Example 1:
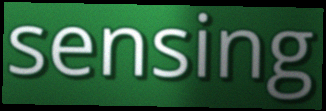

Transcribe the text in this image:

sensing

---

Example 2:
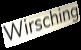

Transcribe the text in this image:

Wirsching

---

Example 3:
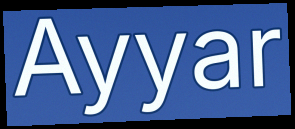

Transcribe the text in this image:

Ayyar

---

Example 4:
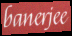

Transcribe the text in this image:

banerjee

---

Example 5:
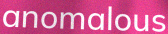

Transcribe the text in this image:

anomalous